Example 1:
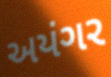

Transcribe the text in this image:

અયંગર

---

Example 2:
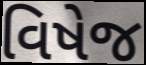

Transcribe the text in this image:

વિષેજ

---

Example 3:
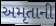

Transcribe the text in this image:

અમૃતાની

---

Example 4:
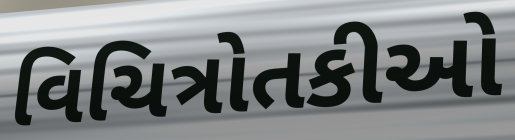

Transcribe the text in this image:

વિચિત્રોતકીઓ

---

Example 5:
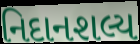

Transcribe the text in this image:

નિદાનશલ્ય